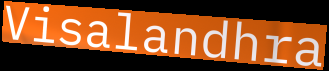
Visalandhra